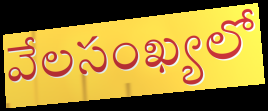
వేలసంఖ్యలో